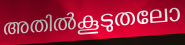
അതിൽകൂടുതലോ